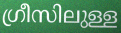
ഗ്രീസിലുള്ള